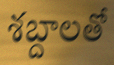
శబ్దాలతో